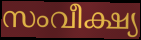
സംവീക്ഷ്യ